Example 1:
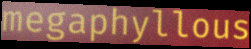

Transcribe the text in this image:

megaphyllous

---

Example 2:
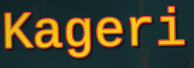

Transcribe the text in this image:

Kageri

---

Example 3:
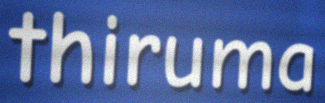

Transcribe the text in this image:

thiruma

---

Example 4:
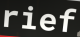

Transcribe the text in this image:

rief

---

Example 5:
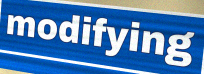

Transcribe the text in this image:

modifying